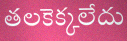
తలకెక్కలేదు